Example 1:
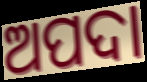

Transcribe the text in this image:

ଅପଦା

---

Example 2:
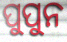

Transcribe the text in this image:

ପୁପୁନ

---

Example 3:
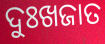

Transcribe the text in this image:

ଦୁଃଖଜାତ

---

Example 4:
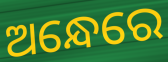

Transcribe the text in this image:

ଅନ୍ଧେରେ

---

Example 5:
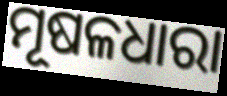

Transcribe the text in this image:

ମୂଷଳଧାରା